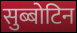
सुब्बोटिन